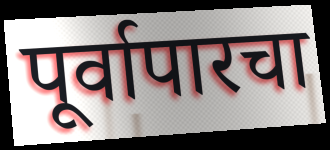
पूर्वापारचा